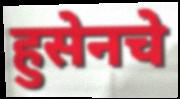
हुसेनचे